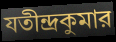
যতীন্দ্রকুমার